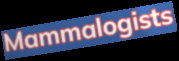
Mammalogists